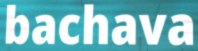
bachava